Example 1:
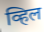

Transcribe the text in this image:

व्हिल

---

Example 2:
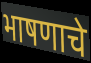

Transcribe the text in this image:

भाषणाचे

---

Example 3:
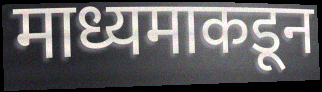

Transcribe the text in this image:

माध्यमाकडून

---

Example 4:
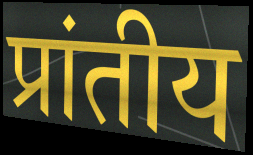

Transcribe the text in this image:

प्रांतीय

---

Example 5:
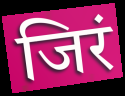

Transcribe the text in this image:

जिरं